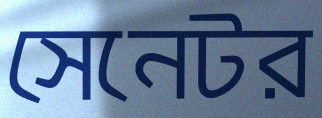
সেনেটর